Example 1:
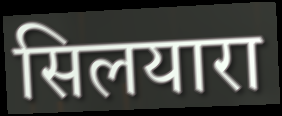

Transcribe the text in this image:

सिलयारा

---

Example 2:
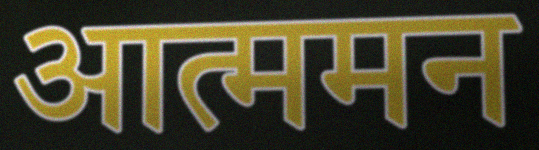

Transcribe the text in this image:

आत्ममन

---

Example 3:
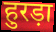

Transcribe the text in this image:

हुरड़ा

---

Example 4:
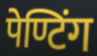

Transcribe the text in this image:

पेण्टिंग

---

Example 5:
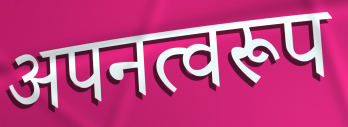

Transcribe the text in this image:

अपनत्वरूप